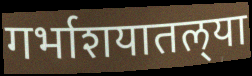
गर्भाशयातल्या